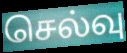
செல்வு